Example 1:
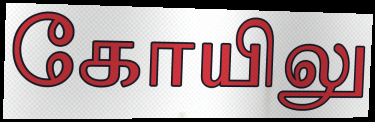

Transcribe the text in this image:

கோயிலு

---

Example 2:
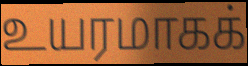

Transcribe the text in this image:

உயரமாகக்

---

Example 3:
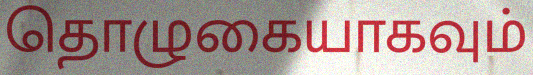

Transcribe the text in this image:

தொழுகையாகவும்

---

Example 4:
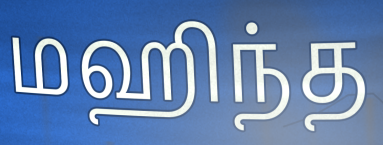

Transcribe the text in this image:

மஹிந்த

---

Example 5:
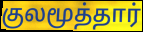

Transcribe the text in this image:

குலமூத்தார்